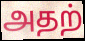
அதற்